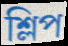
শ্লিপ